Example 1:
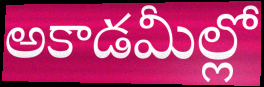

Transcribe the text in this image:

అకాడమీల్లో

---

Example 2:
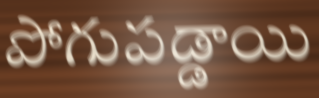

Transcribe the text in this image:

పోగుపడ్డాయి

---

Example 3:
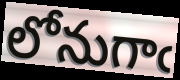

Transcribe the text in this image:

లోనుగాఁ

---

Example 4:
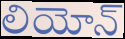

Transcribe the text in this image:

లియోన్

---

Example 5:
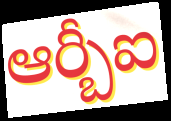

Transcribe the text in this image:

ఆర్బీఐ